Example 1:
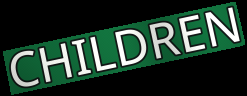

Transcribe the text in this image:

CHILDREN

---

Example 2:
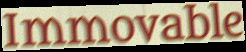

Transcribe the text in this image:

Immovable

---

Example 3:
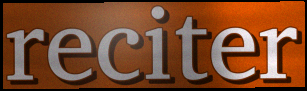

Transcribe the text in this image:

reciter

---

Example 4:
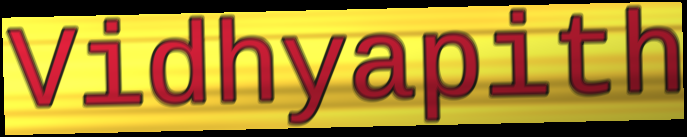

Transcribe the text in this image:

Vidhyapith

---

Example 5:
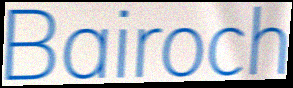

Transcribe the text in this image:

Bairoch